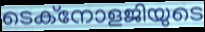
ടെക്നോളജിയുടെ